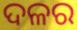
ଦଳର